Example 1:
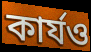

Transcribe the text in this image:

কার্যও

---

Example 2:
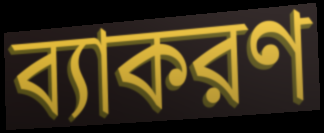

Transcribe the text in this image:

ব্যাকরণ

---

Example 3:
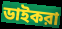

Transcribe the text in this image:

ডাইকরা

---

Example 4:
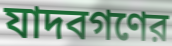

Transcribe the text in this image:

যাদবগণের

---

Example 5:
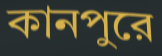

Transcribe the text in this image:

কানপুরে